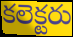
కలెక్టరు